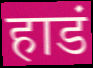
हाडं